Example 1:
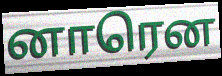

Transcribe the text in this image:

னாரென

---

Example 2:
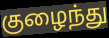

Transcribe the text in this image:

குழைந்து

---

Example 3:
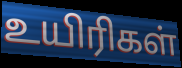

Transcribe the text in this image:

உயிரிகள்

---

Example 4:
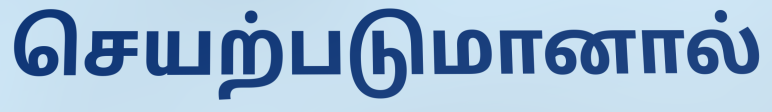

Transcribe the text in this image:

செயற்படுமானால்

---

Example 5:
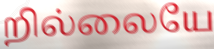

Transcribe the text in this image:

றில்லையே